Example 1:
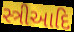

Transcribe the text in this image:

સ્ત્રીઆદિ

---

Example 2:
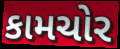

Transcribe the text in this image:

કામચોર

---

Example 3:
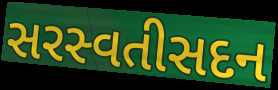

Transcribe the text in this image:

સરસ્વતીસદન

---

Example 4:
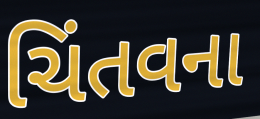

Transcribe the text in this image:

ચિંતવના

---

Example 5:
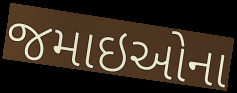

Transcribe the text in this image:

જમાઇઓના